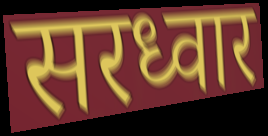
सरध्वार